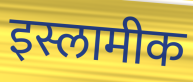
इस्लामीक